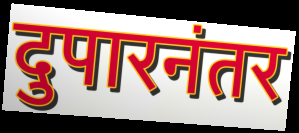
दुपारनंतर